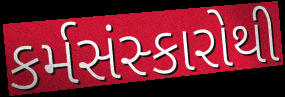
કર્મસંસ્કારોથી